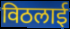
विठलाई